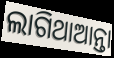
ଲାଗିଥାଆନ୍ତା